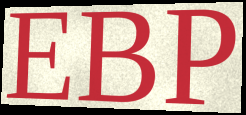
EBP